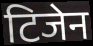
टिजेन